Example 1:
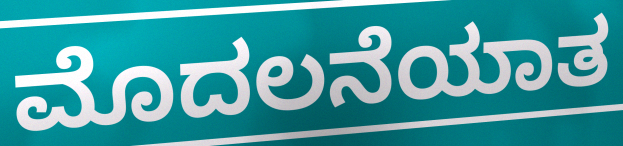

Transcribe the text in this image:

ಮೊದಲನೆಯಾತ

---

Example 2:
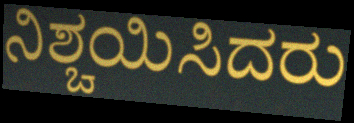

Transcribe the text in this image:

ನಿಶ್ಚಯಿಸಿದರು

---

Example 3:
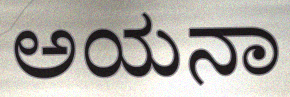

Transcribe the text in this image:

ಅಯನಾ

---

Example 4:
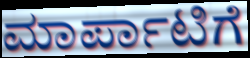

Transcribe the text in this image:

ಮಾರ್ಪಾಟಿಗೆ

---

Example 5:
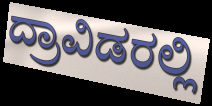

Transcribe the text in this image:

ದ್ರಾವಿಡರಲ್ಲಿ